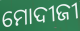
ମୋଦୀଜୀ